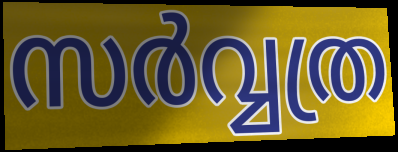
സർവ്വത്ര